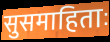
सुसमाहिताः